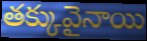
తక్కువైనాయి